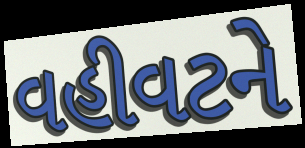
વહીવટને